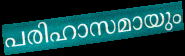
പരിഹാസമായും